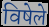
विषेले